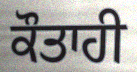
ਕੌਤਾਹੀ